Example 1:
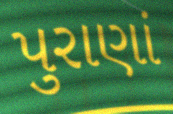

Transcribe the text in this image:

પુરાણાં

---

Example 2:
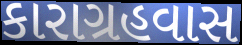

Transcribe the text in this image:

કારાગ્રહવાસ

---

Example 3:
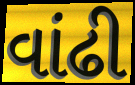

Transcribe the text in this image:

વાંઢી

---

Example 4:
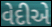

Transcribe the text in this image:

વેદીએ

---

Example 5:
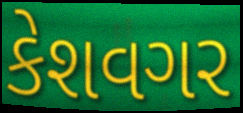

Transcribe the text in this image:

કેશવગર